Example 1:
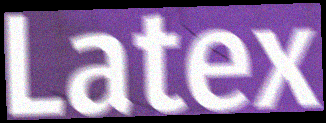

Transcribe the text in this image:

Latex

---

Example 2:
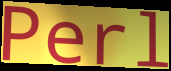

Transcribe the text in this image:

Perl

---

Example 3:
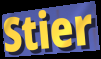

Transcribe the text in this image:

Stier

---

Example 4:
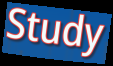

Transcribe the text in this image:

Study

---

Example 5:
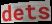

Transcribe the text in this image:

dets